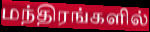
மந்திரங்களில்